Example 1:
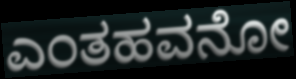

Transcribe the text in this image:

ಎಂತಹವನೋ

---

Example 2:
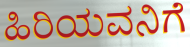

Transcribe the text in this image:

ಹಿರಿಯವನಿಗೆ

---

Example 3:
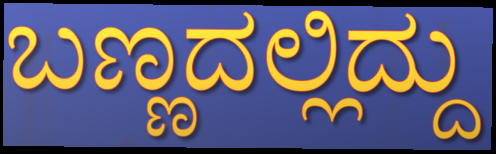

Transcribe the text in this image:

ಬಣ್ಣದಲ್ಲಿದ್ದು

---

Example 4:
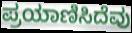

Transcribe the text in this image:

ಪ್ರಯಾಣಿಸಿದೆವು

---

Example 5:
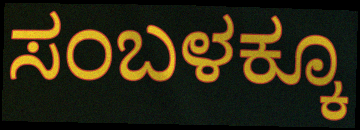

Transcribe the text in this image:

ಸಂಬಳಕ್ಕೂ